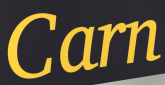
Carn